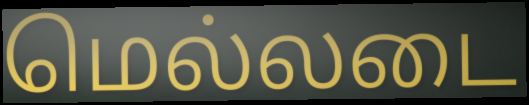
மெல்லடை